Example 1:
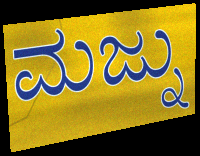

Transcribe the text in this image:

ಮಜ್ನು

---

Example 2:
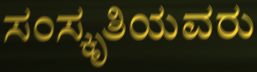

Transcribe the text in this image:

ಸಂಸ್ಕೃತಿಯವರು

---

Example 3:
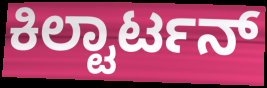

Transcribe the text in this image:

ಕಿಲ್ಟಾರ್ಟನ್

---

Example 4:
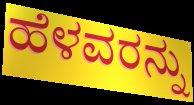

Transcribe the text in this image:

ಹೆಳವರನ್ನು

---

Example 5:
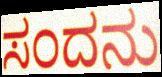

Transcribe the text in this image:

ಸಂದನು